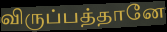
விருப்பத்தானே